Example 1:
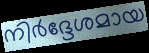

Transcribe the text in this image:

നിർദ്ദേശമായ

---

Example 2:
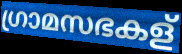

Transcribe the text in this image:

ഗ്രാമസഭകള്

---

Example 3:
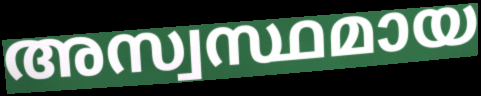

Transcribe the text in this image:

അസ്വസ്ഥമായ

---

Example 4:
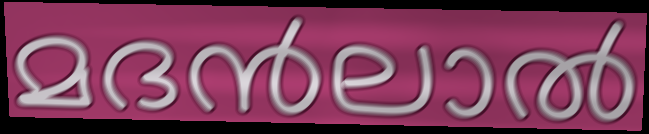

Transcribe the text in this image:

മദൻലാൽ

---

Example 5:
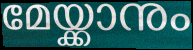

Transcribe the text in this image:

മേയ്ക്കാനും